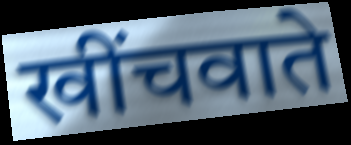
खींचवाते